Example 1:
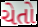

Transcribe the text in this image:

ચેતો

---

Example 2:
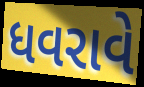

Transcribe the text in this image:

ધવરાવે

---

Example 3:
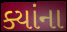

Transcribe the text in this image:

ક્યાંના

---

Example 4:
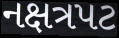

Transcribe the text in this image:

નક્ષત્રપટ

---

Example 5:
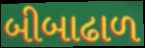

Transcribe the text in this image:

બીબાઢાળ